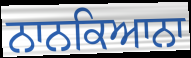
ਨਾਨਕਿਆਨਾ